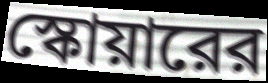
স্কোয়ারের